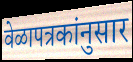
वेळापत्रकांनुसार